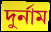
দুৰ্নাম